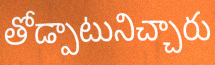
తోడ్పాటునిచ్చారు